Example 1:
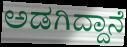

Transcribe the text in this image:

ಅಡಗಿದ್ದಾನೆ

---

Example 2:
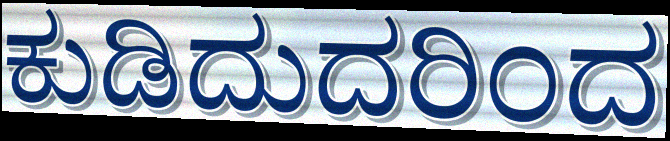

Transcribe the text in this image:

ಕುಡಿದುದರಿಂದ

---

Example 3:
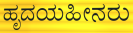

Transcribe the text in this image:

ಹೃದಯಹೀನರು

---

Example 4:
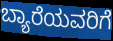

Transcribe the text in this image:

ಬ್ಯಾರೆಯವರಿಗೆ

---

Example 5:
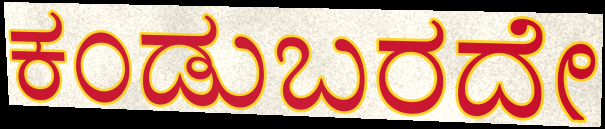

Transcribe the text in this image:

ಕಂಡುಬರದೇ